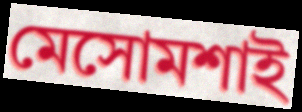
মেসোমশাই